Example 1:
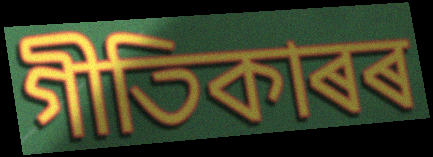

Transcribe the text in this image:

গীতিকাৰৰ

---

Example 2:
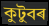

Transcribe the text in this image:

কুটুবৰ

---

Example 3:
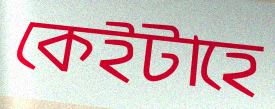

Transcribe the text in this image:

কেইটাহে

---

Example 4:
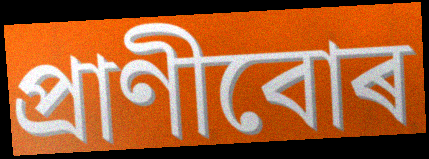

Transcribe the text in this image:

প্ৰাণীবোৰ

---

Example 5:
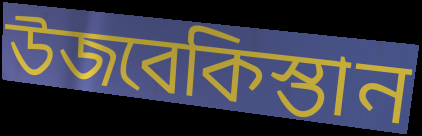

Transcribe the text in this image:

উজবেকিস্তান